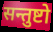
सन्तुष्टो